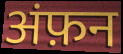
अंफ़न